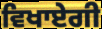
ਵਿਖਾਏਗੀ